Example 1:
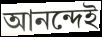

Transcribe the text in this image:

আনন্দেই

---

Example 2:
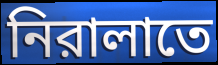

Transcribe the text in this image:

নিরালাতে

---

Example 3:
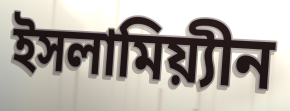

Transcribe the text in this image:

ইসলামিয়্যীন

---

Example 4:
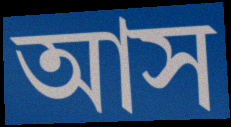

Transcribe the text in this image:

আস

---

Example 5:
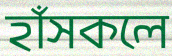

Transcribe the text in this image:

হাঁসকলে